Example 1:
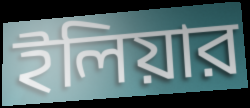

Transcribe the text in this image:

ইলিয়ার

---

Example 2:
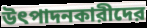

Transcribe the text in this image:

উৎপাদনকারীদের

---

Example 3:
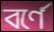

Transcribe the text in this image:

বর্ণে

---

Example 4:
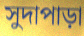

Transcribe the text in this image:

সুদাপাড়া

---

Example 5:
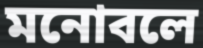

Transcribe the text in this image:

মনোবলে